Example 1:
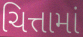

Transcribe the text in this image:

ચિત્તામાં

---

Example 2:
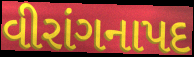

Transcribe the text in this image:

વીરાંગનાપદ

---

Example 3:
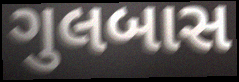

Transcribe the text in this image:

ગુલબાસ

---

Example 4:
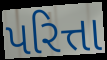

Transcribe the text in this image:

પરિત્તા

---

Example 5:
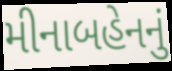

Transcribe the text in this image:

મીનાબહેનનું